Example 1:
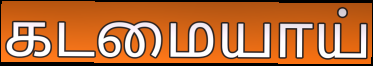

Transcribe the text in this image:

கடமையாய்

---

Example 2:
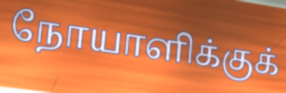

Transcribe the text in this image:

நோயாளிக்குக்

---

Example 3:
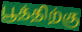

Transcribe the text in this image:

பூத்திற்கு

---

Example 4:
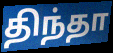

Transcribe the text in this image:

திந்தா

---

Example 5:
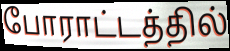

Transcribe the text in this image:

போராட்டத்தில்